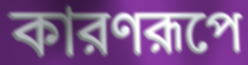
কারণরূপে